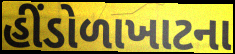
હીંડોળાખાટના